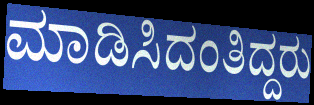
ಮಾಡಿಸಿದಂತಿದ್ದರು